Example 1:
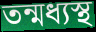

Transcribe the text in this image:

তন্মধ্যস্থ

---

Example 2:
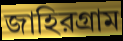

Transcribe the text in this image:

জাহিরগ্রাম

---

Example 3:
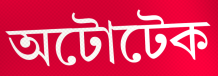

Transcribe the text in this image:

অটোটেক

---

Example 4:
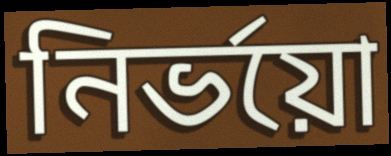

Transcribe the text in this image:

নির্ভয়ো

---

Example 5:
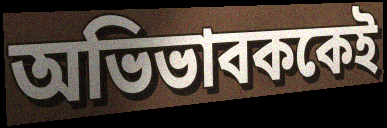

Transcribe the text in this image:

অভিভাবককেই